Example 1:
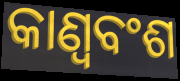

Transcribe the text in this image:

କାଣ୍ୱବଂଶ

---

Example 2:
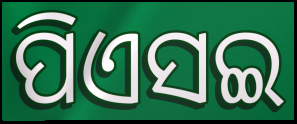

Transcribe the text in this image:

ପିଏସଇ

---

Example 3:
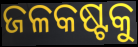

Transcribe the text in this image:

ଜଳକଷ୍ଟକୁ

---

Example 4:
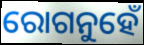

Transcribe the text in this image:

ରୋଗନୁହେଁ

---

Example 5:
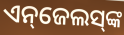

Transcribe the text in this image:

ଏନ୍‌ଜେଲସ୍‌ଙ୍କ